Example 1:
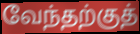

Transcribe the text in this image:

வேந்தற்குத்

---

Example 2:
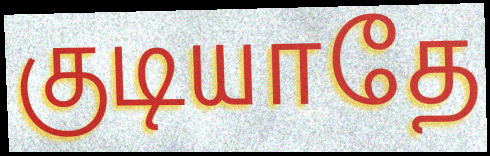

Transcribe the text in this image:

குடியாதே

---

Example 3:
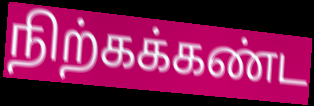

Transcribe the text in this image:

நிற்கக்கண்ட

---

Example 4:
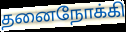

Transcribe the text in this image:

தனைநோக்கி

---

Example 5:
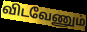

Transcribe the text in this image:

விடவேணும்